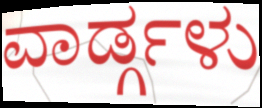
ವಾರ್ಡ್ಗಳು